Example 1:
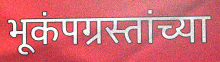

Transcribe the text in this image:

भूकंपग्रस्तांच्या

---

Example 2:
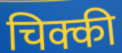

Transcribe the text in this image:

चिक्की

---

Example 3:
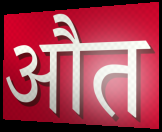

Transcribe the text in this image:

औत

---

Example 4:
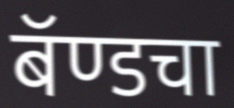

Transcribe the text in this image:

बॅण्डचा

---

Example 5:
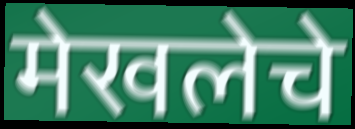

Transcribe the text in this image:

मेखलेचे